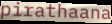
pirathaana